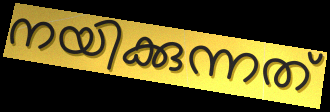
നയിക്കുന്നത്